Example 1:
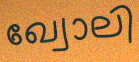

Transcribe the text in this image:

ഖ്വോലി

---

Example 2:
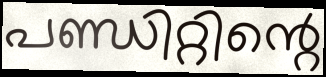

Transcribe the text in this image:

പണ്ഡിറ്റിന്റെ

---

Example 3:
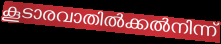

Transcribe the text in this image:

കൂടാരവാതിൽക്കൽനിന്ന്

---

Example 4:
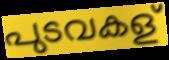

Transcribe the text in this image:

പുടവകള്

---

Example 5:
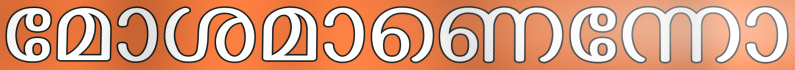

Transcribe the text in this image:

മോശമാണെന്നോ